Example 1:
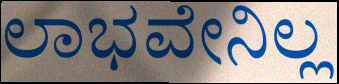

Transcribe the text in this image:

ಲಾಭವೇನಿಲ್ಲ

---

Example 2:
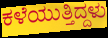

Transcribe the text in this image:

ಕಳೆಯುತ್ತಿದ್ದಳು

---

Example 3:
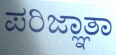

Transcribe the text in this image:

ಪರಿಜ್ಞಾತಾ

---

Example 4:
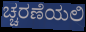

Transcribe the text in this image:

ಚ್ಚರಣೆಯಲಿ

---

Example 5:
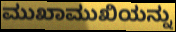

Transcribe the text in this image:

ಮುಖಾಮುಖಿಯನ್ನು